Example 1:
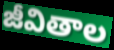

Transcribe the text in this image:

జీవితాల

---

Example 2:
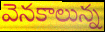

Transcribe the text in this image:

వెనకాలున్న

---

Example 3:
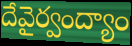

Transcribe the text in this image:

దేవైర్వంద్యాం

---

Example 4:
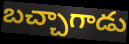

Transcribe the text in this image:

బచ్చాగాడు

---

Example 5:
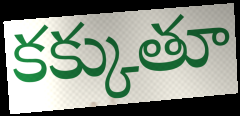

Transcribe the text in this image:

కక్కుతూ